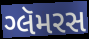
ગ્લૅમરસ